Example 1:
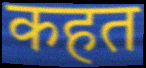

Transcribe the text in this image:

कहत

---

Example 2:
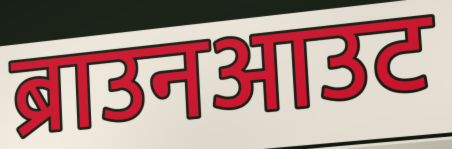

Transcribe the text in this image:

ब्राउनआउट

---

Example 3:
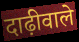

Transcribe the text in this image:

दाढ़ीवाले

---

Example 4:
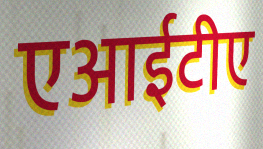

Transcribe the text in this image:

एआईटीए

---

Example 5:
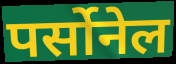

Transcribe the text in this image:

पर्सोनेल